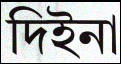
দিইনা